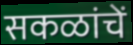
सकळांचें